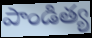
పాండిత్య